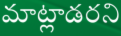
మాట్లాడరని